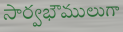
సార్వభౌములుగా